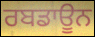
ਰਬਡਾਊਨ